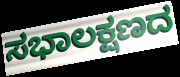
ಸಭಾಲಕ್ಷಣದ